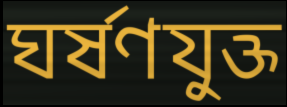
ঘর্ষণযুক্ত